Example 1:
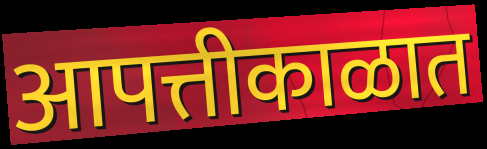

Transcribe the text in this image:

आपत्तीकाळात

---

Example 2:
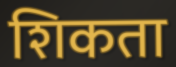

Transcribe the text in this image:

शिकता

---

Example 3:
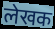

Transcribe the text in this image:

लेखक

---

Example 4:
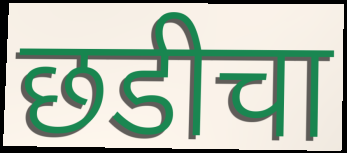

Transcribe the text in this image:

छडीचा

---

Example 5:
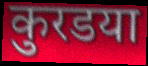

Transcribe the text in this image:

कुरडया